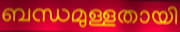
ബന്ധമുള്ളതായി